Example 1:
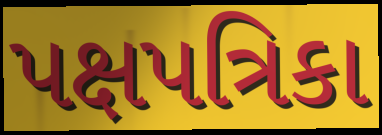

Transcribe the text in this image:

પક્ષપત્રિકા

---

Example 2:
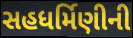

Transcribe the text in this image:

સહધર્મિણીની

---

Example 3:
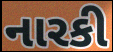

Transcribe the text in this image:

નારકી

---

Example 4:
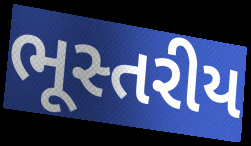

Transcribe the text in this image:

ભૂસ્તરીય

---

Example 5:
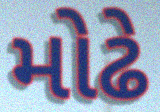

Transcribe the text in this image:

મોઢે